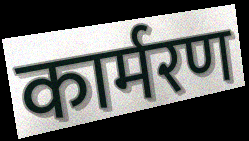
कार्मरण